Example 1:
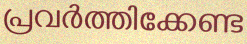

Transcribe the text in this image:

പ്രവർത്തിക്കേണ്ട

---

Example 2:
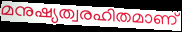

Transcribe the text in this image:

മനുഷ്യത്വരഹിതമാണ്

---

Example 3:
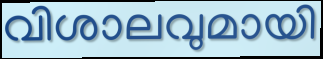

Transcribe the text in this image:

വിശാലവുമായി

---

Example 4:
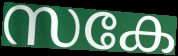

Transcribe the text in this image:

സകേ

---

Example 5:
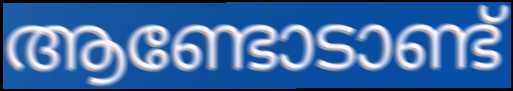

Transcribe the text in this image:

ആണ്ടോടാണ്ട്